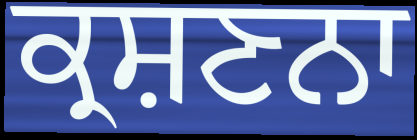
ਕ੍ਰਸ਼ਣਨਾ